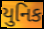
યુનિક